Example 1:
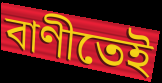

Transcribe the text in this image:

বাণীতেই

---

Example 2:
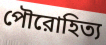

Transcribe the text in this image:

পৌরোহিত্য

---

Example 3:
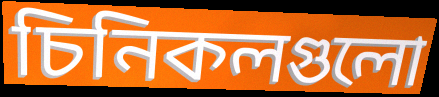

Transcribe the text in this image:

চিনিকলগুলো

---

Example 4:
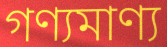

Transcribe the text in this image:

গণ্যমাণ্য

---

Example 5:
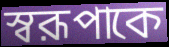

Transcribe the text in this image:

স্বরূপাকে